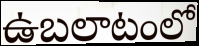
ఉబలాటంలో